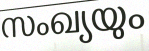
സംഖ്യയും